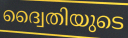
ദ്വൈതിയുടെ